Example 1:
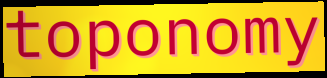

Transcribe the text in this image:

toponomy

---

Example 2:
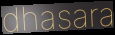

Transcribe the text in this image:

dhasara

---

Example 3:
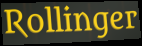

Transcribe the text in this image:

Rollinger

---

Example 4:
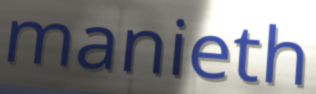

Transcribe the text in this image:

manieth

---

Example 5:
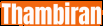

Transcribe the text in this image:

Thambiran